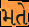
મતે